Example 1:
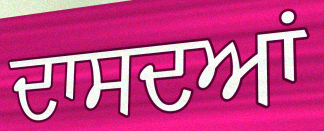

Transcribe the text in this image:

ਦਾਸਦਆਂ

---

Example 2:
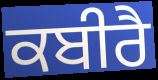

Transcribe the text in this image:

ਕਬੀਰੈ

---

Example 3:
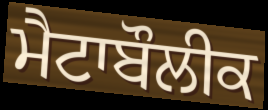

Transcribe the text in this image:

ਮੈਟਾਬੌਲੀਕ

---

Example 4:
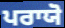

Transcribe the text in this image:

ਪਰਾਯੋ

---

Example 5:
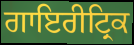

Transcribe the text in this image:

ਗਾਇਰੀਟ੍ਰਿਕ